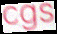
cgs